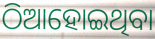
ଠିଆହୋଇଥିବା